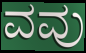
ವವು